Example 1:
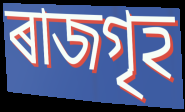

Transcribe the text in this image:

ৰাজগৃহ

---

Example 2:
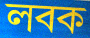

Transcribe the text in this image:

লবক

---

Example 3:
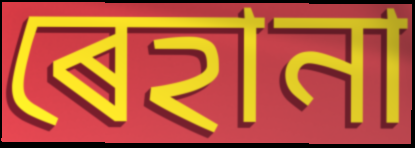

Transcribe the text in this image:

ৰেহানা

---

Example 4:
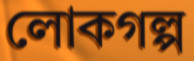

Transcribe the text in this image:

লোকগল্প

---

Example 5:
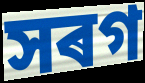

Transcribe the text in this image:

সৰগ